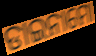
ଡାଇନାମୋ